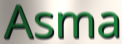
Asma